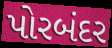
પોરબંદર